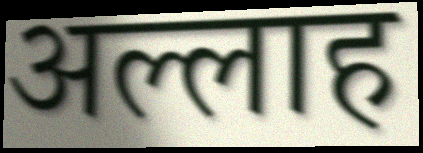
अल्लाह